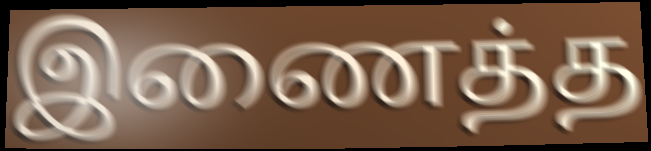
இணைத்த